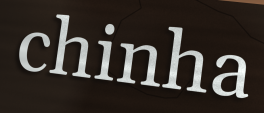
chinha